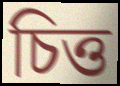
চিত্ত